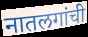
नातलगांची